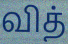
வித்